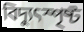
বিদ্যুৎস্পৃষ্ট